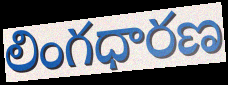
లింగధారణ